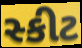
સ્કીટ